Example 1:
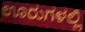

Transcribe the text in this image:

ಊರುಗಳಲ್ಲಿ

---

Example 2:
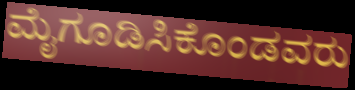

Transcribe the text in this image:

ಮೈಗೂಡಿಸಿಕೊಂಡವರು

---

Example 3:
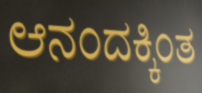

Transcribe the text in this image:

ಆನಂದಕ್ಕಿಂತ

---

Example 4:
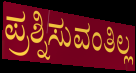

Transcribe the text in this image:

ಪ್ರಶ್ನಿಸುವಂತಿಲ್ಲ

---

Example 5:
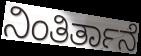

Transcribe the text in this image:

ನಿಂತಿರ್ತಾನೆ